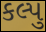
કલ્પુ